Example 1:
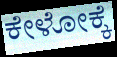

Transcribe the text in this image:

ಕೇಳೋಕ್ಕೆ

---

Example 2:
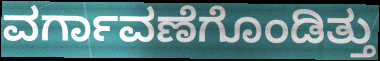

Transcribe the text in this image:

ವರ್ಗಾವಣೆಗೊಂಡಿತ್ತು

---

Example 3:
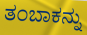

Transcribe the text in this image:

ತಂಬಾಕನ್ನು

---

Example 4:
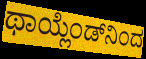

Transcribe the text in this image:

ಥಾಯ್ಲೆಂಡ್‌ನಿಂದ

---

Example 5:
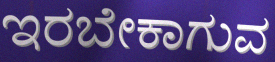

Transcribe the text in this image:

ಇರಬೇಕಾಗುವ